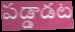
పడ్డాడట